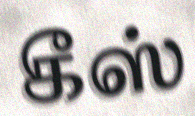
கீஸ்